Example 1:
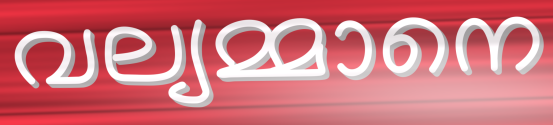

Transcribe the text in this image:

വല്യമ്മാനെ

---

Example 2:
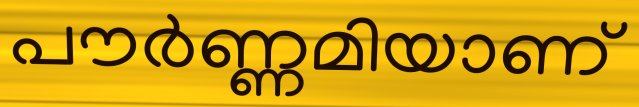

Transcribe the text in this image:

പൗർണ്ണമിയാണ്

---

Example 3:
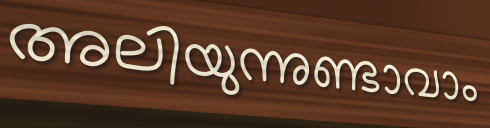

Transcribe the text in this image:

അലിയുന്നുണ്ടാവാം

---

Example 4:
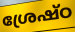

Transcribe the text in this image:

ശ്രേഷ്ഠ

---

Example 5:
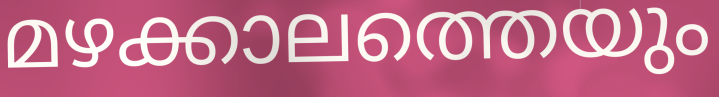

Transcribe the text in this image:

മഴക്കാലത്തെയും